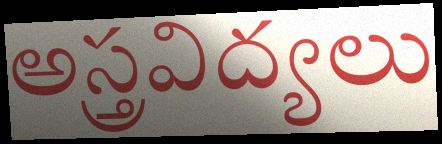
అస్త్రవిద్యలు